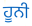
ਹੂਨੀ